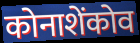
कोनाशेंकोव